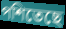
পশিতেছে